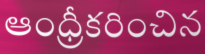
ఆంధ్రీకరించిన